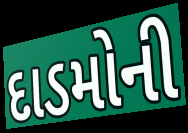
દાડમોની